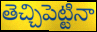
తెచ్చిపెట్టినా